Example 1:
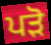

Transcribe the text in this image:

ਪੜੋ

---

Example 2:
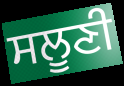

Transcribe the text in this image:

ਸਲੂਣੀ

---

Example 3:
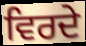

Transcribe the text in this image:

ਵਿਰਦੇ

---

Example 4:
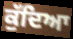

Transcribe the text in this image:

ਕੁੱਦਿਆ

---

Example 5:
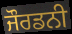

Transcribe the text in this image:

ਜੌਰਡਨੀ